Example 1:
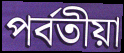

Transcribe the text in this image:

পৰ্বতীয়া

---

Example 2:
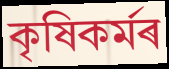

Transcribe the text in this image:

কৃষিকৰ্মৰ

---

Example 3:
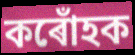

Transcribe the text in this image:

কৰোঁহক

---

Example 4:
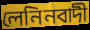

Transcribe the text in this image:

লেনিনবাদী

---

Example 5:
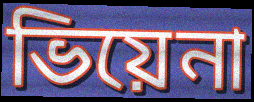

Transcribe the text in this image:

ভিয়েনা